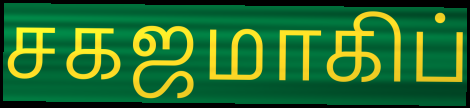
சகஜமாகிப்